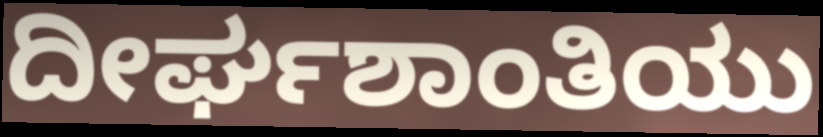
ದೀರ್ಘಶಾಂತಿಯು